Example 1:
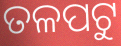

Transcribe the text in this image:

ତଳପଟୁ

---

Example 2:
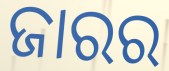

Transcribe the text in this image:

ଜାରର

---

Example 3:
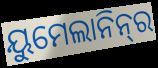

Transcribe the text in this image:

ୟୁମେଲାନିନ୍‌ର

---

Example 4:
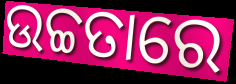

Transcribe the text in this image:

ଉଚ୍ଚତାରେ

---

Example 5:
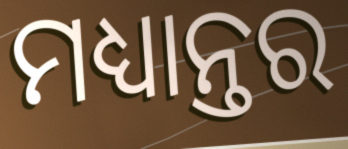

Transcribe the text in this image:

ମଧ୍ୟାନ୍ତର